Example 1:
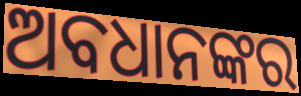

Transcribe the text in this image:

ଅବଧାନଙ୍କର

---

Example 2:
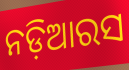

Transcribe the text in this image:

ନଡ଼ିଆରସ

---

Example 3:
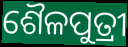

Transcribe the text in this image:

ଶୈଳପୁତ୍ରୀ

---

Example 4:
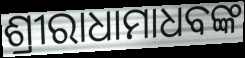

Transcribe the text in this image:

ଶ୍ରୀରାଧାମାଧବଙ୍କ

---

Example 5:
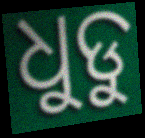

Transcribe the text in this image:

ଧୁଡୁ